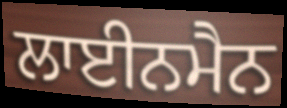
ਲਾਈਨਮੈਨ